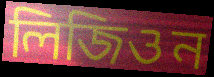
লিজিওন